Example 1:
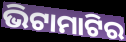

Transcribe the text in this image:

ଭିଟାମାଟିର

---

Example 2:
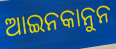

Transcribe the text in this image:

ଆଇନକାନୁନ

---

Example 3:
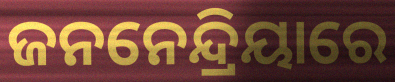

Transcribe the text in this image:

ଜନନେନ୍ଦ୍ରିୟାରେ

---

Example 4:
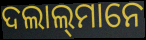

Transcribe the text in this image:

ଦଲାଲ୍‍ମାନେ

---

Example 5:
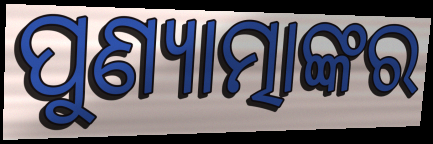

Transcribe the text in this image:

ପୁଣ୍ୟାତ୍ମାଙ୍କର